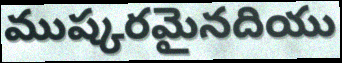
ముష్కరమైనదియు